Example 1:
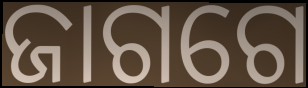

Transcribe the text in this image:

ଜାଗଗେ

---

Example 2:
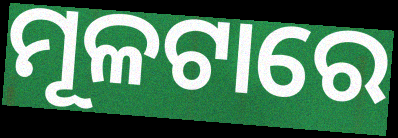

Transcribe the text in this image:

ମୂଳଟାରେ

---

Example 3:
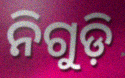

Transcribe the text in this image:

ନିଗୁଡ଼ି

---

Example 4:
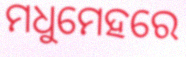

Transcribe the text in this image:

ମଧୁମେହରେ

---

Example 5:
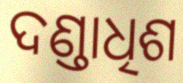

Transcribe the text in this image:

ଦଣ୍ଡାଧିଶ